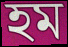
হম